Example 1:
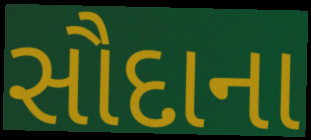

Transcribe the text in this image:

સૌદાના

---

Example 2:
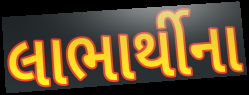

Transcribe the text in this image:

લાભાર્થીના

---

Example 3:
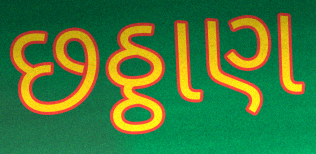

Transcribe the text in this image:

છઠ્ઠાણ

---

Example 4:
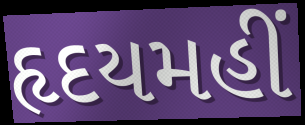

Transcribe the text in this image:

હૃદયમહીં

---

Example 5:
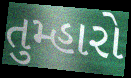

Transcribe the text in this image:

તુમ્હારો